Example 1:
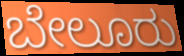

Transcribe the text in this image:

ಬೇಲೂರು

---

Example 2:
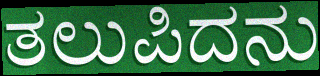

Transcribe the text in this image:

ತಲುಪಿದನು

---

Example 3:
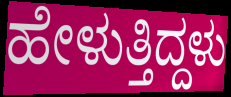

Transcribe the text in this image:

ಹೇಳುತ್ತಿದ್ದಳು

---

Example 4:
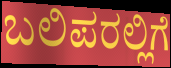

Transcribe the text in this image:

ಬಲಿಪರಲ್ಲಿಗೆ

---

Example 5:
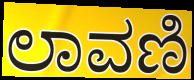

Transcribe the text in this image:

ಲಾವಣಿ